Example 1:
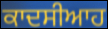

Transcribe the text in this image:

ਕਾਦਸੀਆਹ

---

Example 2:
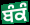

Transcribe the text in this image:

ਬੰਕੰ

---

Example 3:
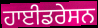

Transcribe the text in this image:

ਹਾਈਡਰੇਸਨ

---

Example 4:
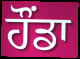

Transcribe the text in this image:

ਹੌਂਡਾ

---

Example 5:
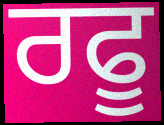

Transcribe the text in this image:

ਰਫੂ